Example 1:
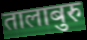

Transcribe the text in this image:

तालाबुरु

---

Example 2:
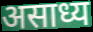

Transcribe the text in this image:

असाध्य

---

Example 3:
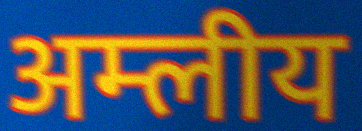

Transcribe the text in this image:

अम्लीय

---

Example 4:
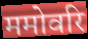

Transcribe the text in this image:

ममोवरि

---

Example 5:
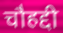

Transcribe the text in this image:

चौहद्दी